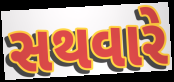
સથવારે